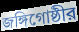
জঙ্গিগোষ্ঠীর